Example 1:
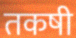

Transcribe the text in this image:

तकषी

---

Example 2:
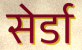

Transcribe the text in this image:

सेर्डा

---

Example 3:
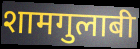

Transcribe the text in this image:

शामगुलाबी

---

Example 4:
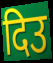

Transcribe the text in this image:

दिउ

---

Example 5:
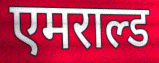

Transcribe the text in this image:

एमराल्ड